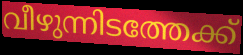
വീഴുന്നിടത്തേക്ക്